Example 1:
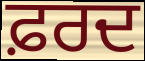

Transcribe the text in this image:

ਫ਼ਰਦ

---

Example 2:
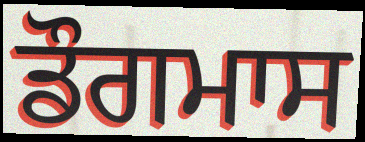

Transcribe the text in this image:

ਡੌਗਮਾਸ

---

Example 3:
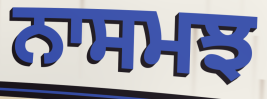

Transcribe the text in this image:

ਨਾਸਮਝ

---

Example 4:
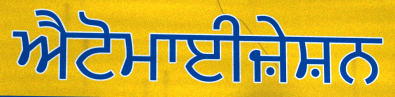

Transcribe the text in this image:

ਐਟੋਮਾਈਜ਼ੇਸ਼ਨ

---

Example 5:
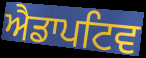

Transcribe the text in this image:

ਐਡਾਪਟਿਵ